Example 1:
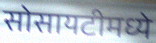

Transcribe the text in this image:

सोसायटीमध्ये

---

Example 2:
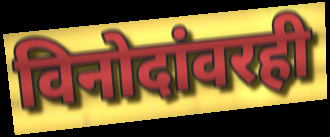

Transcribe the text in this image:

विनोदांवरही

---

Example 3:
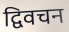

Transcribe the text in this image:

द्विवचन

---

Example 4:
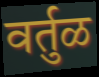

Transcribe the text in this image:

वर्तुळ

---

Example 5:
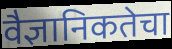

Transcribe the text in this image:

वैज्ञानिकतेचा